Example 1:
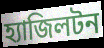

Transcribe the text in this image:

হ্যাজিলটন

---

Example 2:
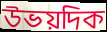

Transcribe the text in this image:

উভয়দিক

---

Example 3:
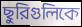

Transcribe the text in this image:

ছুরিগুলিকে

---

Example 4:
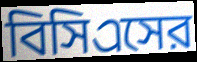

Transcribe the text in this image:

বিসিএসের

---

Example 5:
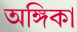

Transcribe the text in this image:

অঙ্গিকা